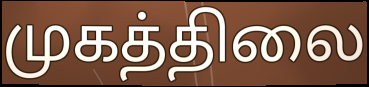
முகத்திலை